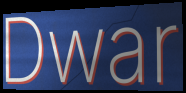
Dwar